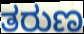
ತರುಣ